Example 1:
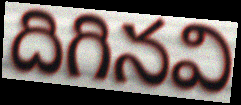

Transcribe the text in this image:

దిగినవి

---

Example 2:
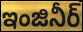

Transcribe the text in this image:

ఇంజినీర్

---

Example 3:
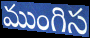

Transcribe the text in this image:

ముంగిస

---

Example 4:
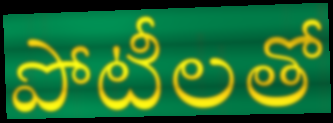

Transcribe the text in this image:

పోటీలతో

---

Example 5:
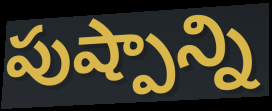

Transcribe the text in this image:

పుష్పాన్ని